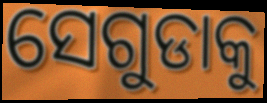
ସେଗୁଡାକୁ